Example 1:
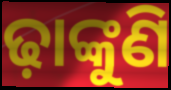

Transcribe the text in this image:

ଢ଼ାଙ୍କୁଣି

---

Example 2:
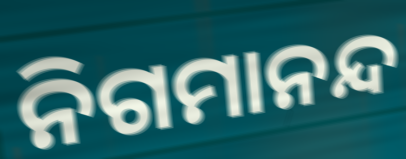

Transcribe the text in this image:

ନିଗମାନନ୍ଦ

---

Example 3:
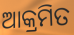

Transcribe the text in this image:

ଆକ୍ରମିତ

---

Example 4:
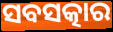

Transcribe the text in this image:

ସବସତ୍କାର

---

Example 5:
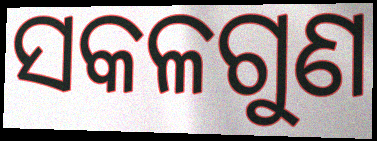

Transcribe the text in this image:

ସକଳଗୁଣ